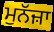
ਮੁਨੱਜ਼ਾ